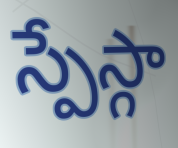
స్పేస్గా